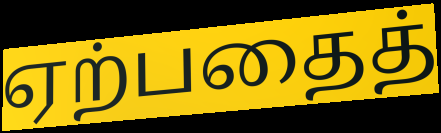
ஏற்பதைத்